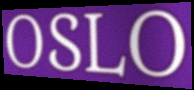
OSLO